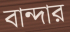
বান্দার